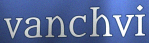
vanchvi